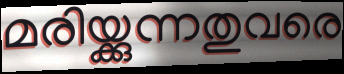
മരിയ്ക്കുന്നതുവരെ